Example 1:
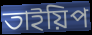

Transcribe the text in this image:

তাইয়িপ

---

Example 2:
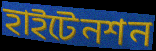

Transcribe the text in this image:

হাইটেনশন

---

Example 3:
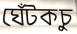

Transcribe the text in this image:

ঘেঁটকচু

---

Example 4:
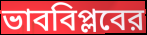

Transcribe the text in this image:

ভাববিপ্লবের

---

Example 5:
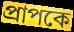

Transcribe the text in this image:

প্রাপকে